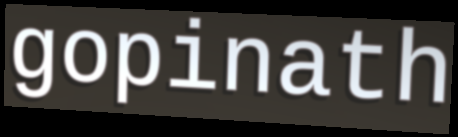
gopinath